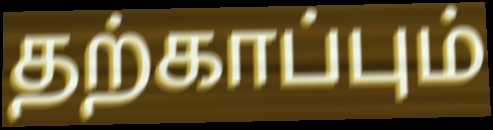
தற்காப்பும்